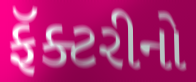
ફૅક્ટરીનો